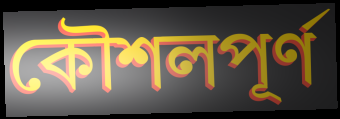
কৌশলপূৰ্ণ